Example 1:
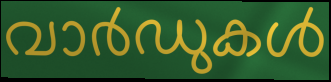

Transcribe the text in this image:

വാർഡുകൾ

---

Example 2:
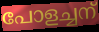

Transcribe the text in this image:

പോളച്ചന്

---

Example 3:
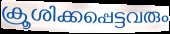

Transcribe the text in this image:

ക്രൂശിക്കപ്പെട്ടവരും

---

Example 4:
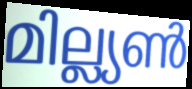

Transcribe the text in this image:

മില്ല്യൺ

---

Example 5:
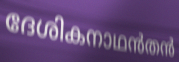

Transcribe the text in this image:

ദേശികനാഥൻതൻ